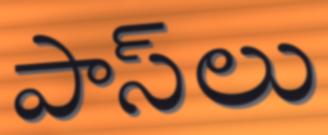
పాస్‌లు